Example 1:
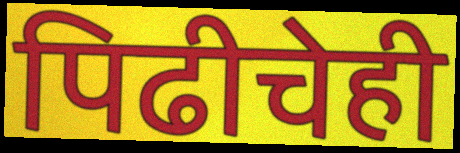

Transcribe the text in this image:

पिढीचेही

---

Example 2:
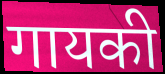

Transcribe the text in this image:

गायकी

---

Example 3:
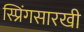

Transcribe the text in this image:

स्प्रिंगसारखी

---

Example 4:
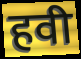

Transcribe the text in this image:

हवी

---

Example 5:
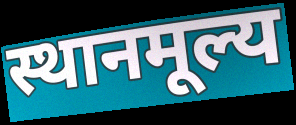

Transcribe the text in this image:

स्थानमूल्य